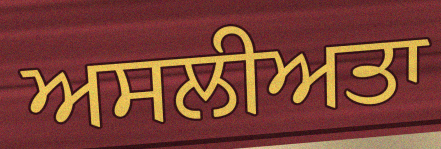
ਅਸਲੀਅਤਾ